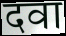
दवा